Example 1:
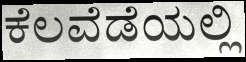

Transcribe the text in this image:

ಕೆಲವೆಡೆಯಲ್ಲಿ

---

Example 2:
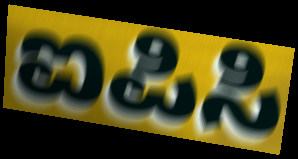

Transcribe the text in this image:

ಐಪಿಸಿ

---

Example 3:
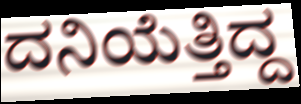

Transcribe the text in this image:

ದನಿಯೆತ್ತಿದ್ದ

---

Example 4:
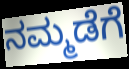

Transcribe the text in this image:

ನಮ್ಮಡೆಗೆ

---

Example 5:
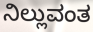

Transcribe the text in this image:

ನಿಲ್ಲುವಂತ